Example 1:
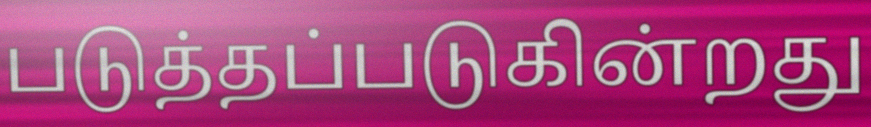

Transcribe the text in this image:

படுத்தப்படுகின்றது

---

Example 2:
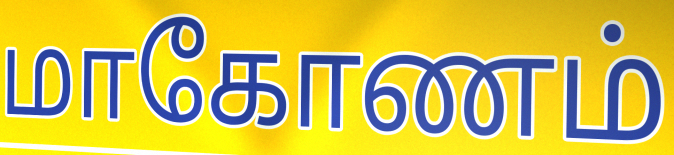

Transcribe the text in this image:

மாகோணம்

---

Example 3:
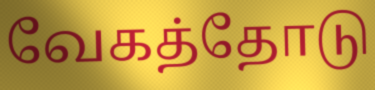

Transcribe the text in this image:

வேகத்தோடு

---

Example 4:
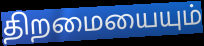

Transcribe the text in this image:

திறமையையும்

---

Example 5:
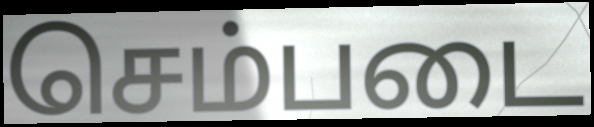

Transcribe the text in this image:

செம்படை